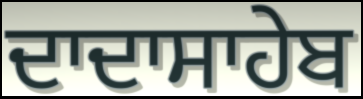
ਦਾਦਾਸਾਹੇਬ